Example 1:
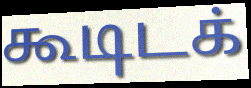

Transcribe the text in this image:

கூடிடக்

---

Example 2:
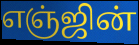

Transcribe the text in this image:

எஞ்ஜின்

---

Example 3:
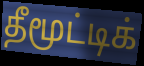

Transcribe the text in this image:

தீமூட்டிக்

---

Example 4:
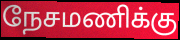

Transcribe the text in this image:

நேசமணிக்கு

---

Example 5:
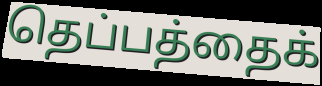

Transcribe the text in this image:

தெப்பத்தைக்